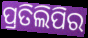
ପ୍ରତିଲିପିର